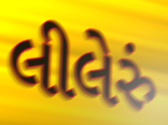
લીલેરું